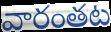
వారంతట